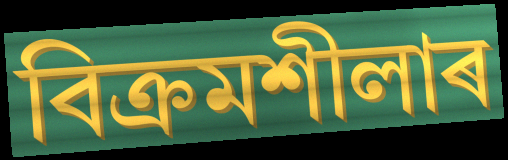
বিক্ৰমশীলাৰ